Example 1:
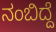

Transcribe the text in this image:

ನಂಬಿದ್ದೆ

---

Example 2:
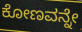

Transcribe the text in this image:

ಕೋಣವನ್ನೇ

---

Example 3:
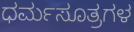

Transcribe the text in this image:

ಧರ್ಮಸೂತ್ರಗಳ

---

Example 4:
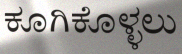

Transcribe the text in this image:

ಕೂಗಿಕೊಳ್ಳಲು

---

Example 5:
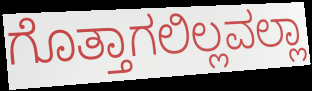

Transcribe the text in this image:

ಗೊತ್ತಾಗಲಿಲ್ಲವಲ್ಲಾ